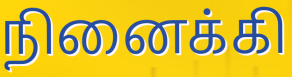
நினைக்கி